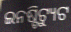
ଇନଷ୍ଟିଟ୍ୟୁଟ